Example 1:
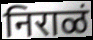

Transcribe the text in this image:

निराळं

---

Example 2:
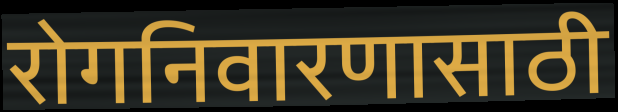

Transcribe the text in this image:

रोगनिवारणासाठी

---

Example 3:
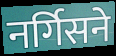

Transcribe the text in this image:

नर्गिसने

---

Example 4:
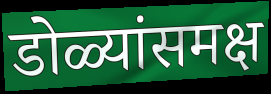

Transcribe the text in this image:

डोळ्यांसमक्ष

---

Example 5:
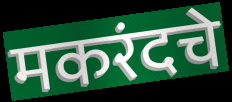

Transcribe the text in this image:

मकरंदचे